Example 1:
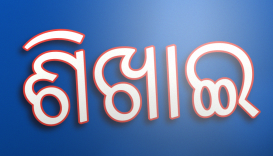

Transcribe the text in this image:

ଶିଖାଇ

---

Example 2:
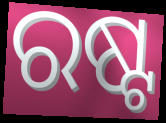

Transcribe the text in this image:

ରଷ୍ଟ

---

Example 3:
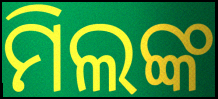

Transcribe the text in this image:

ମିଲଙ୍କ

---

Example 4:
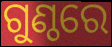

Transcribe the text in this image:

ଗୁଣ୍ଠରେ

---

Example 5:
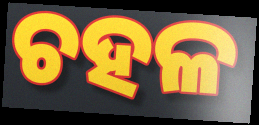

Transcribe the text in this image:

ଚହଳ